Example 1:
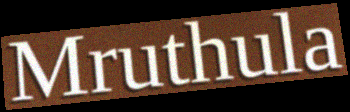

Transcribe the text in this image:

Mruthula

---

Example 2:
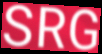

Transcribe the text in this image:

SRG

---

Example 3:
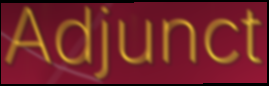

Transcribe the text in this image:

Adjunct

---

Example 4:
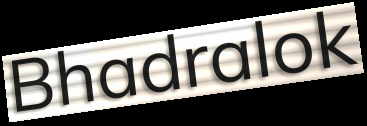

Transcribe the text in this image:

Bhadralok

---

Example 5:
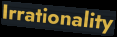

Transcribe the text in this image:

Irrationality